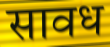
सावध